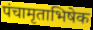
पंचामृताभिषेक